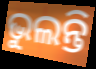
ଭୁଲନ୍ତି